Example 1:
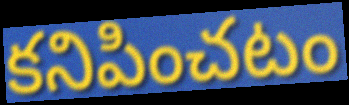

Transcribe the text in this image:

కనిపించటం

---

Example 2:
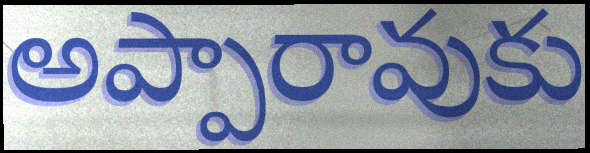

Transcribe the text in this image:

అప్పారావుకు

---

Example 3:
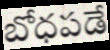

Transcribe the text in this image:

బోధపడే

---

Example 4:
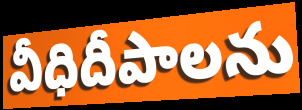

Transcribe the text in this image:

వీధిదీపాలను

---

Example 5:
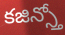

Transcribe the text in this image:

కజిన్స్తో